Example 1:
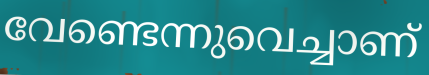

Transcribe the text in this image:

വേണ്ടെന്നുവെച്ചാണ്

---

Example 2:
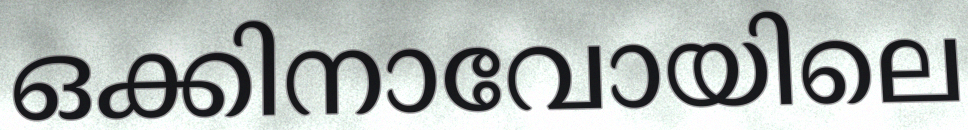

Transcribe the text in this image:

ഒക്കിനാവോയിലെ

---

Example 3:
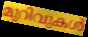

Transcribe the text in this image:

മുറിവുകൾ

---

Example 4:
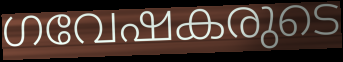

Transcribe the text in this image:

ഗവേഷകരുടെ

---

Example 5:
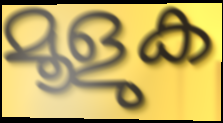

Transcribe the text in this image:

മൂളുക